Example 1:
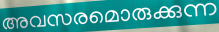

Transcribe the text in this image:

അവസരമൊരുക്കുന്ന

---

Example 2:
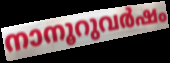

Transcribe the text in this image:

നാനൂറുവർഷം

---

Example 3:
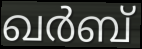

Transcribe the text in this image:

ഖർബ്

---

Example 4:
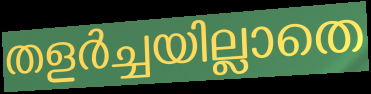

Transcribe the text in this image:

തളർച്ചയില്ലാതെ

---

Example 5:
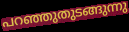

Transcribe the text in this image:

പറഞ്ഞുതുടങ്ങുന്നു